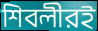
শিবলীরই